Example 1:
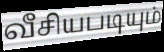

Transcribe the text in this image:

வீசியபடியும்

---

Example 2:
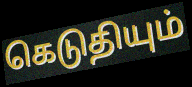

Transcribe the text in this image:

கெடுதியும்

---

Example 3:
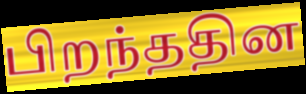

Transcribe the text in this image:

பிறந்ததின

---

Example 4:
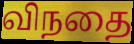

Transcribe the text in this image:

விநதை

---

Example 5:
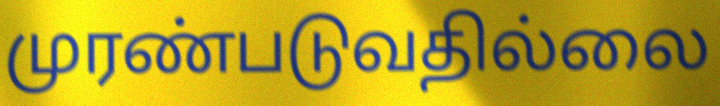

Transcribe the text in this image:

முரண்படுவதில்லை